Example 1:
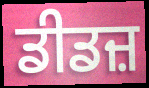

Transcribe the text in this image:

ਡੀਡਜ਼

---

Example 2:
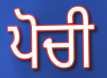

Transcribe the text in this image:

ਪੋਚੀ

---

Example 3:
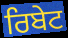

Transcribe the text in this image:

ਰਿਬੇਟ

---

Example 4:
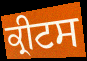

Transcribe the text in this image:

ਕ੍ਰੀਟਸ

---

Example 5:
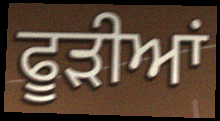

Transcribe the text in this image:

ਫੂੜੀਆਂ